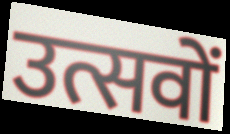
उत्सवों